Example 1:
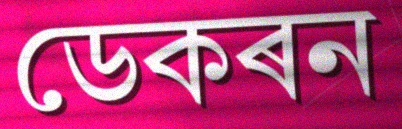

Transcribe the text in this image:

ডেকৰন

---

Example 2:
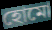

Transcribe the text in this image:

হোমো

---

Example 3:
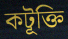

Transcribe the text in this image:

কটূক্তি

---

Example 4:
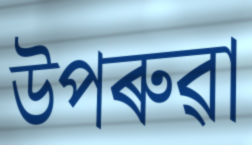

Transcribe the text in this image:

উপৰুৱা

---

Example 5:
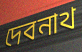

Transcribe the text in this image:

দেবনাথ